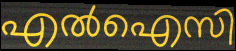
എൽഐസി